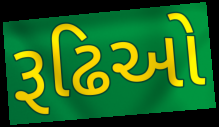
રૂઢિઓ